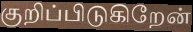
குறிப்பிடுகிறேன்